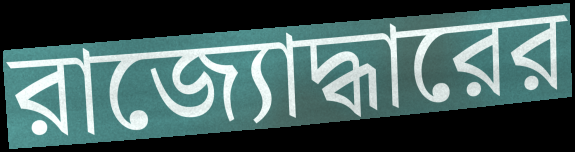
রাজ্যোদ্ধারের